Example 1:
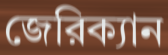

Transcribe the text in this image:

জেরিক্যান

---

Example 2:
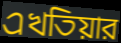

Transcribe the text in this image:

এখতিয়ার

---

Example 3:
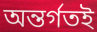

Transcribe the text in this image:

অন্তর্গতই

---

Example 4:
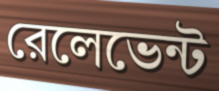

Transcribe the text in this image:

রেলেভেন্ট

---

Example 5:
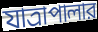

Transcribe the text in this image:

যাত্রাপালার